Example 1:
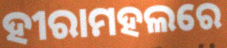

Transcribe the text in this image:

ହୀରାମହଲରେ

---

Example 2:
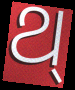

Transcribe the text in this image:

ଥ୍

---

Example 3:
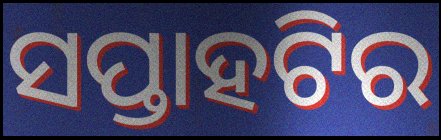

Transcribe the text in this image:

ସପ୍ତାହଟିର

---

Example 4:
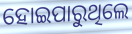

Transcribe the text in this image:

ହୋଇପାରୁଥିଲେ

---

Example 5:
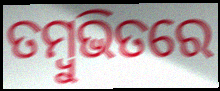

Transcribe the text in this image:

ତମ୍ବୁଭିତରେ